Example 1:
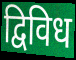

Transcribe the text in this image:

द्विविध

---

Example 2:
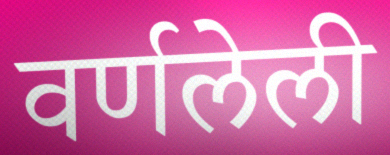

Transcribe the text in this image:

वर्णलेली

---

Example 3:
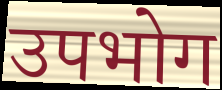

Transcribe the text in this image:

उपभोग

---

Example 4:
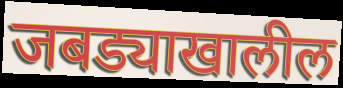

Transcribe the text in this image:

जबड्याखालील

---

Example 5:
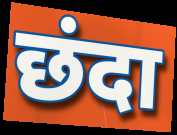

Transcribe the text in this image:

छंदा